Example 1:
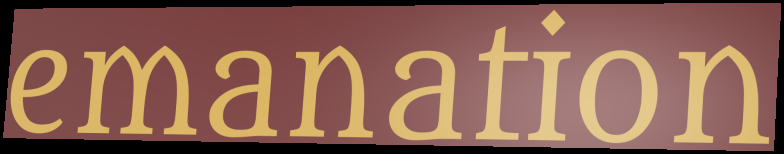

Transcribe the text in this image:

emanation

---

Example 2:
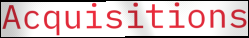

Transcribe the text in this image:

Acquisitions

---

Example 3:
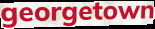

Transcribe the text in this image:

georgetown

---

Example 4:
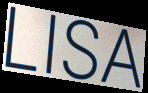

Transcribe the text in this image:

LISA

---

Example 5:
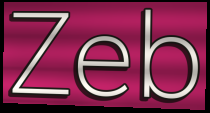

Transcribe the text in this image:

Zeb